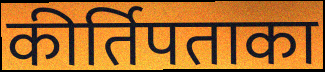
कीर्तिपताका